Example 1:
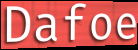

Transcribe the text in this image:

Dafoe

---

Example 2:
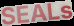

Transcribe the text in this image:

SEALs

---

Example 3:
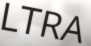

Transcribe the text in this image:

LTRA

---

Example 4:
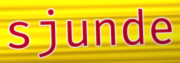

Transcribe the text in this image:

sjunde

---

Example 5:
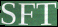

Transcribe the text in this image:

SFT